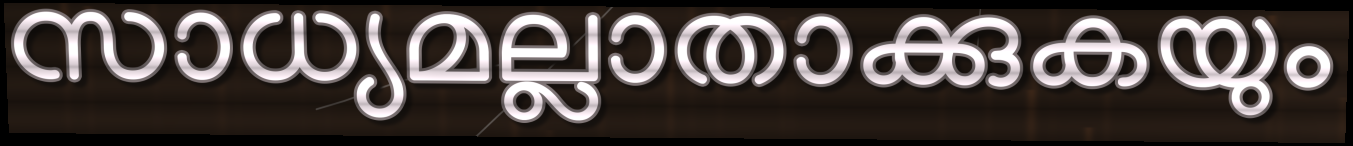
സാധ്യമല്ലാതാക്കുകയും